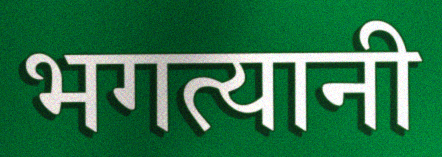
भगत्यानी